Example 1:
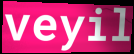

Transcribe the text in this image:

veyil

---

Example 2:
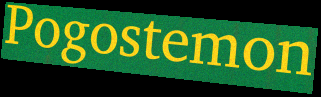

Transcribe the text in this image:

Pogostemon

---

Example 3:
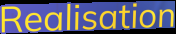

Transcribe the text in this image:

Realisation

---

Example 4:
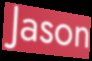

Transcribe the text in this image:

Jason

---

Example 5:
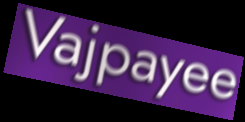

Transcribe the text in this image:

Vajpayee